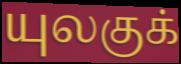
யுலகுக்